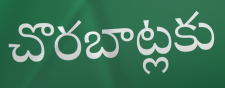
చొరబాట్లకు